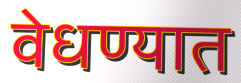
वेधण्यात